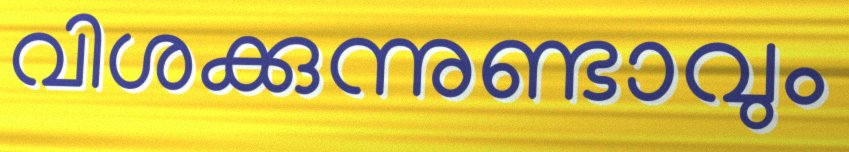
വിശക്കുന്നുണ്ടാവും